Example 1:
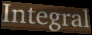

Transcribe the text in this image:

Integral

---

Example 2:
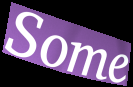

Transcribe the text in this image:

Some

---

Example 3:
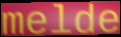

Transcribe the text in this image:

melde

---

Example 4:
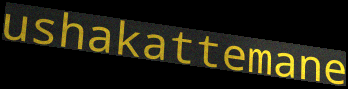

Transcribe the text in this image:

ushakattemane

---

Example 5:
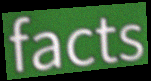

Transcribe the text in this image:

facts